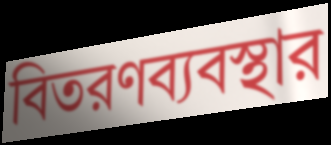
বিতরণব্যবস্থার